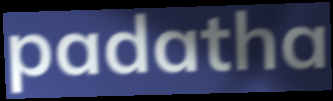
padatha